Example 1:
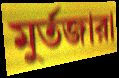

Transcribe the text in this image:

মুর্তজারা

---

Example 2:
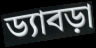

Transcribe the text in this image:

ড্যাবড়া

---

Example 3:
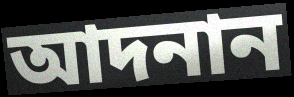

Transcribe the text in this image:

আদনান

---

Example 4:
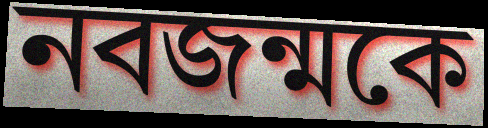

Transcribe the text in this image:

নবজন্মকে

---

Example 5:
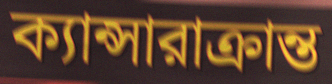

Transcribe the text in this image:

ক্যান্সারাক্রান্ত